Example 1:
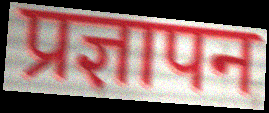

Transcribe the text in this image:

प्रज्ञापन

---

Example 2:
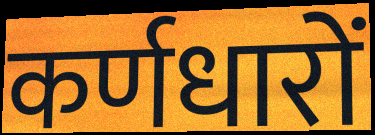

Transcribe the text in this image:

कर्णधारों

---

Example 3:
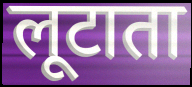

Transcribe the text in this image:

लूटाता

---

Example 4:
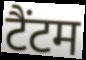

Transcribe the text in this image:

टैंटम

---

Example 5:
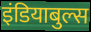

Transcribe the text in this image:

इंडियाबुल्‍स